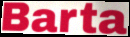
Barta